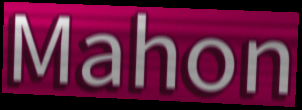
Mahon